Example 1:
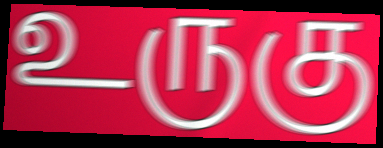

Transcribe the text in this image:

உருகு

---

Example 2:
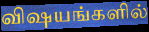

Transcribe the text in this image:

விஷயங்களில்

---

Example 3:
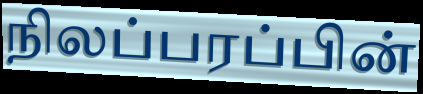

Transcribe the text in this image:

நிலப்பரப்பின்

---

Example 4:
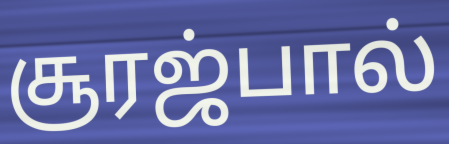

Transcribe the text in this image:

சூரஜ்பால்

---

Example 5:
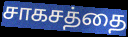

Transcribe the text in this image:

சாகசத்தை